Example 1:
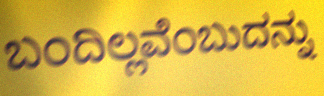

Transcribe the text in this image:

ಬಂದಿಲ್ಲವೆಂಬುದನ್ನು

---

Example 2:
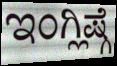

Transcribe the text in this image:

ಇಂಗ್ಲಿಷ್ಗೆ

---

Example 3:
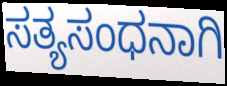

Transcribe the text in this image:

ಸತ್ಯಸಂಧನಾಗಿ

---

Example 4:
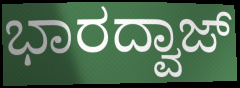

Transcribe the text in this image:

ಭಾರದ್ವಾಜ್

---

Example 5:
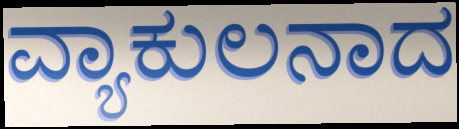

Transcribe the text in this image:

ವ್ಯಾಕುಲನಾದ